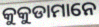
କୁକୁଡାମାନେ